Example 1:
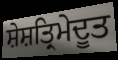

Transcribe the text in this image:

ਸ਼ੇਸ਼ਤ੍ਰਿਮੇਦੂਤ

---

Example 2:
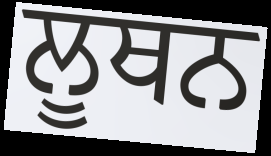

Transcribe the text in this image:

ਲੂਥਨ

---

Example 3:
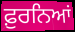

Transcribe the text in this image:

ਫ਼ੁਰਨਿਆਂ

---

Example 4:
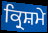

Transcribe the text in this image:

ਕ੍ਰਿਸ਼ਮੇ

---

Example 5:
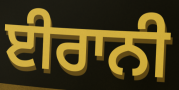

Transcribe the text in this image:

ਈਰਾਨੀ